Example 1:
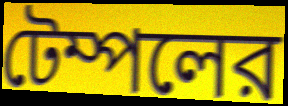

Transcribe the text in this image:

টেম্পলের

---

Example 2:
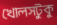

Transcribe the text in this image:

খোলসটুকু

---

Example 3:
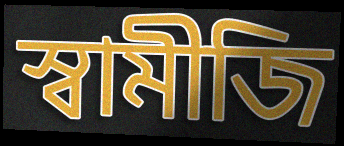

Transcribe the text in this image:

স্বামীজি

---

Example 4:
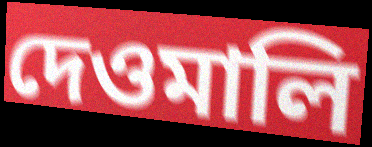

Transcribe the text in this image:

দেওমালি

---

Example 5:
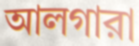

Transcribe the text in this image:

আলগারা